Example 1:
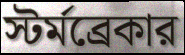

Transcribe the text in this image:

স্টর্মব্রেকার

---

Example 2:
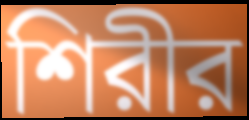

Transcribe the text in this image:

শিরীর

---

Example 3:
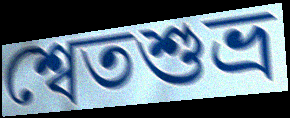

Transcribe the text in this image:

শ্বেতশুভ্র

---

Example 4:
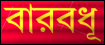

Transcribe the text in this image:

বারবধূ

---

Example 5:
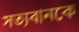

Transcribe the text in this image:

সত্যবানকে